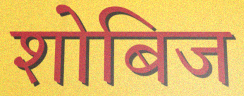
शोबिज